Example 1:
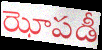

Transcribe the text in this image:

ఝోపడీ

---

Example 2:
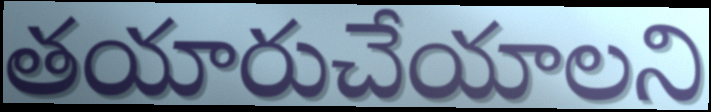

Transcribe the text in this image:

తయారుచేయాలని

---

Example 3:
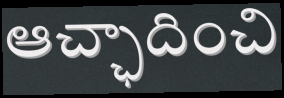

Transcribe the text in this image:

ఆచ్ఛాదించి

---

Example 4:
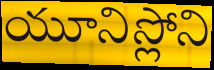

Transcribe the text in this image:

యూనిస్లోని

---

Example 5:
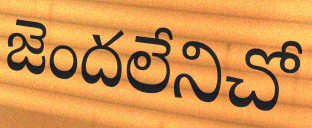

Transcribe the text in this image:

జెందలేనిచో